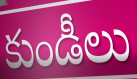
కుండీలు